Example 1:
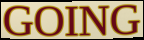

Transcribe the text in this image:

GOING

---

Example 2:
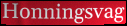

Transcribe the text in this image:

Honningsvag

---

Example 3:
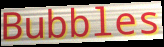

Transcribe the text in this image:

Bubbles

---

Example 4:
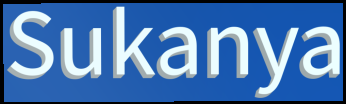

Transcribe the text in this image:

Sukanya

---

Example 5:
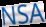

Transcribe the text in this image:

NSA